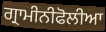
ਗ੍ਰਾਮੀਨੀਫੋਲੀਆ